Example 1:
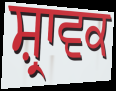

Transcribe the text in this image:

ਸ਼੍ਰਾਵਕ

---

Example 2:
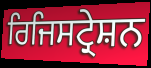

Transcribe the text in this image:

ਰਿਜਿਸਟ੍ਰੇਸ਼ਨ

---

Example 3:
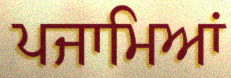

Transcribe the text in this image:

ਪਜਾਮਿਆਂ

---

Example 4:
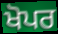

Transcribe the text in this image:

ਖੋਪਰ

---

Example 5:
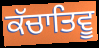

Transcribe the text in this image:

ਕੱਚਾਤਿਵੂ